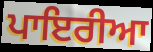
ਪਾਇਰੀਆ